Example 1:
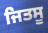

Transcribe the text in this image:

ਜਿਤਸੂ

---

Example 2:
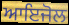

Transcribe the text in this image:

ਆਇਜੋਲ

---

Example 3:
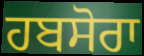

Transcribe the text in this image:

ਹਬਸੋਰਾ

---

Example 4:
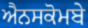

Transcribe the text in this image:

ਐਨਸਕੋਮਬੇ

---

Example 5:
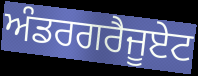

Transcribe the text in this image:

ਅੰਡਰਗਰੈਜੂਏਟ